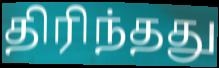
திரிந்தது